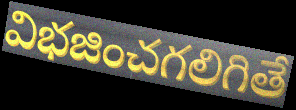
విభజించగలిగితే